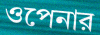
ওপেনার